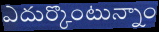
ఎదుర్కొంటున్నాం